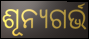
ଶୂନ୍ୟଗର୍ଭ